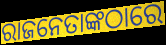
ରାଜନେତାଙ୍କଠାରେ